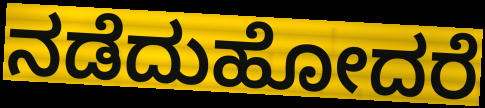
ನಡೆದುಹೋದರೆ